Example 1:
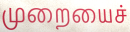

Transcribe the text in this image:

முறையைச்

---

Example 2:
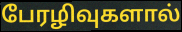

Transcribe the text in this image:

பேரழிவுகளால்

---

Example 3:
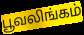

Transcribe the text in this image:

பூவலிங்கம்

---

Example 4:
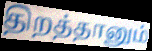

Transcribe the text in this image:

திறத்தானும்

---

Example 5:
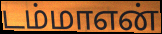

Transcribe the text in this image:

டம்மாஎன்